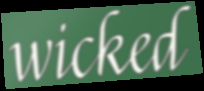
wicked